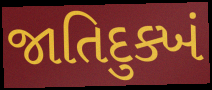
જાતિદુક્ખં